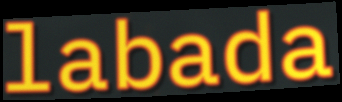
labada